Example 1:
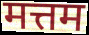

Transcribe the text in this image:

मत्तम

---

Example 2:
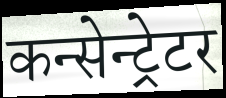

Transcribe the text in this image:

कन्सेन्ट्रेटर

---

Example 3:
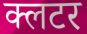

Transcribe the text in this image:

क्लटर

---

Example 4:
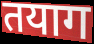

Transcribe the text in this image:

तयाग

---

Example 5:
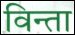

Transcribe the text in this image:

विन्ता